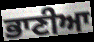
ਭਾਣੀਆ